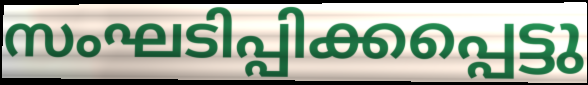
സംഘടിപ്പിക്കപ്പെട്ടു